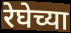
रेघेच्या